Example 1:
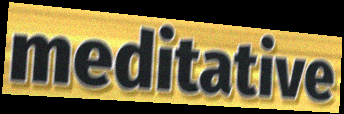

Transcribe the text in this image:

meditative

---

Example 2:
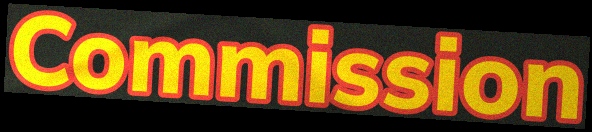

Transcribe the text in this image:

Commission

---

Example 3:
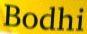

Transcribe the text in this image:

Bodhi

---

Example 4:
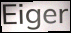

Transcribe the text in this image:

Eiger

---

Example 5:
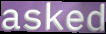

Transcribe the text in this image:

asked